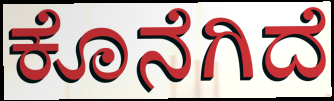
ಕೊನೆಗಿದೆ